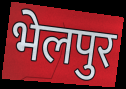
भेलपुर